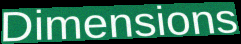
Dimensions